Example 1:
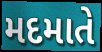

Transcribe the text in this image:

મદમાતે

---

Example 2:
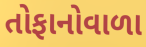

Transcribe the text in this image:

તોફાનોવાળા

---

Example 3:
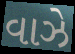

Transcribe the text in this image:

વાઝે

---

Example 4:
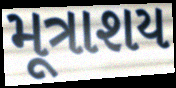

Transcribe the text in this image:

મૂત્રાશય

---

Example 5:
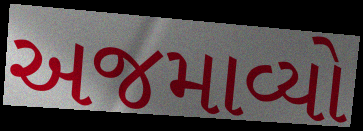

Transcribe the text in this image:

અજમાવ્યો